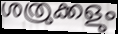
ശത്രുക്കളും